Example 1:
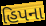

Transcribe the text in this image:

હિપના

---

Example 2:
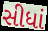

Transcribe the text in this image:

સીધાં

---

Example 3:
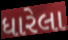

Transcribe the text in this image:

ધારેલા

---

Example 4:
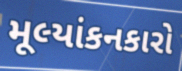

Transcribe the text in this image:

મૂલ્યાંકનકારો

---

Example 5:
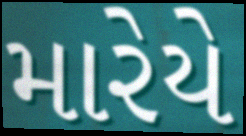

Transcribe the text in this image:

મારેયે